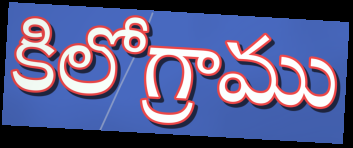
కిలోగ్రాము